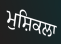
ਮੁਸ਼ਿਕਲਾ